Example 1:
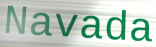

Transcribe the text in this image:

Navada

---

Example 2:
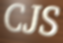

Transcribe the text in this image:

CJS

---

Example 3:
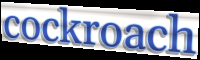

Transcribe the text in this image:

cockroach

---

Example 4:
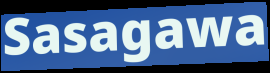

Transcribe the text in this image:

Sasagawa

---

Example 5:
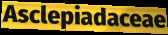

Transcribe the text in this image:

Asclepiadaceae